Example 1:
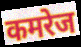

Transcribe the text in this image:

कमरेज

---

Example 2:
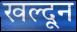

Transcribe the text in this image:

खल्दून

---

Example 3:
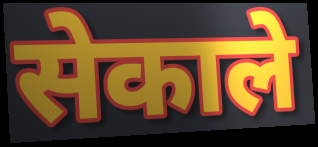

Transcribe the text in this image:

सेकाले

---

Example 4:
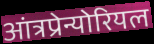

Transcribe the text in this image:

आंत्रप्रेन्योरियल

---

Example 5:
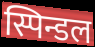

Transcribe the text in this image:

स्पिन्डल